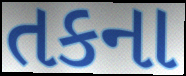
તકના